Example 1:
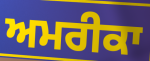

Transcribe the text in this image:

ਅਮਰੀਕਾ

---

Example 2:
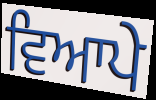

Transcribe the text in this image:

ਵਿਆਪੇ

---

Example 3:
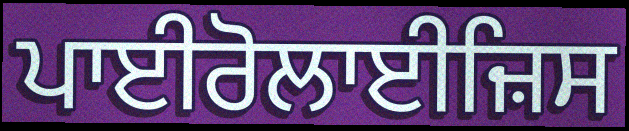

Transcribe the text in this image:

ਪਾਈਰੋਲਾਈਜ਼ਿਸ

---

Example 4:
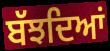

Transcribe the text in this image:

ਬੱਝਦਿਆਂ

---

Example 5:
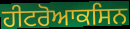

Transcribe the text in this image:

ਹੀਟਰੋਆਕਸਿਨ